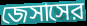
জেসাসের